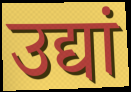
उद्यां